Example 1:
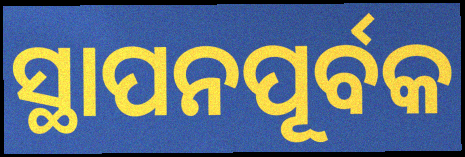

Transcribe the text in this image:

ସ୍ଥାପନପୂର୍ବକ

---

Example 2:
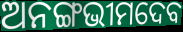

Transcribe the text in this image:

ଅନଙ୍ଗଭୀମଦେବ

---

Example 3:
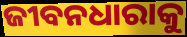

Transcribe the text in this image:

ଜୀବନଧାରାକୁ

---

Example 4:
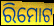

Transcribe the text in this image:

ରିମୋଟ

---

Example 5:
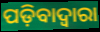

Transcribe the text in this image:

ପଡ଼ିବାଦ୍ୱାରା